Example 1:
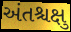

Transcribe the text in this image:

અંતશ્ચક્ષુ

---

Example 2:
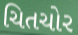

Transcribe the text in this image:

ચિતચોર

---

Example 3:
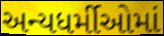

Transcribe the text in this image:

અન્યધર્મીઓમાં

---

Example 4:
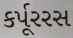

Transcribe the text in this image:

કર્પૂરરસ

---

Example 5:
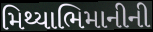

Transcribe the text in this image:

મિથ્યાભિમાનીની